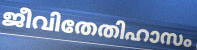
ജീവിതേതിഹാസം